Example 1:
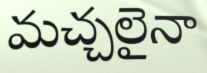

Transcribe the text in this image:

మచ్చలైనా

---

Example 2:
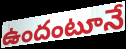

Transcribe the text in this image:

ఉందంటూనే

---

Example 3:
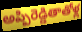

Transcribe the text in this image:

అప్పిరెడ్డితాతోళ్ల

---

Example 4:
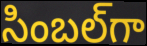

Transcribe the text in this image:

సింబల్‌గా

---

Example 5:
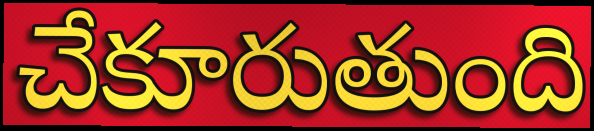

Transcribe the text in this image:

చేకూరుతుంది